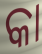
କା